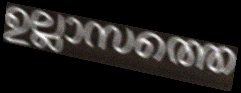
ഉല്ലാസത്തെ